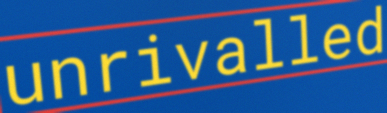
unrivalled